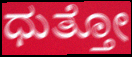
ಧುತ್ತೋ